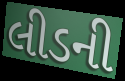
લીડની